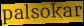
palsokar